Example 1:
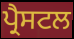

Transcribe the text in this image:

ਪ੍ਰੈਸਟਲ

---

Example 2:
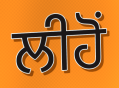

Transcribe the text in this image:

ਲੀਹੋਂ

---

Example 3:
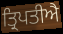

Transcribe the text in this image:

ਤ੍ਰਿਪਤੀਐ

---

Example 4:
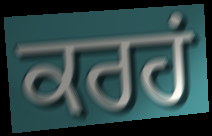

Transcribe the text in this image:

ਕਰਹਂ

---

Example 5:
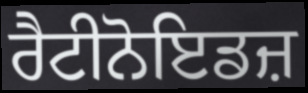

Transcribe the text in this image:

ਰੈਟੀਨੋਇਡਜ਼